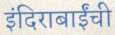
इंदिराबाईंची